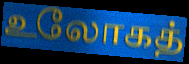
உலோகத்